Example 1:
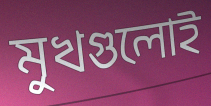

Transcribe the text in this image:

মুখগুলোই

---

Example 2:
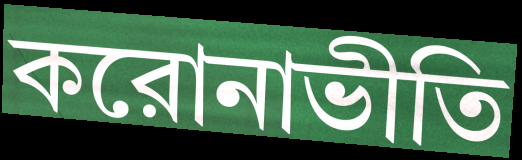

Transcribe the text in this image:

করোনাভীতি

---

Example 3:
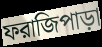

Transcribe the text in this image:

ফরাজিপাড়া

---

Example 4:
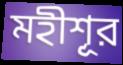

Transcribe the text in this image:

মহীশূর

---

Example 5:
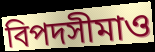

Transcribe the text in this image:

বিপদসীমাও